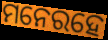
ମନେରହେ